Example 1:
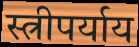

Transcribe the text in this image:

स्त्रीपर्याय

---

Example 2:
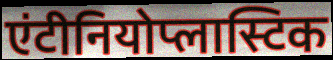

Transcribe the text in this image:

एंटीनियोप्लास्टिक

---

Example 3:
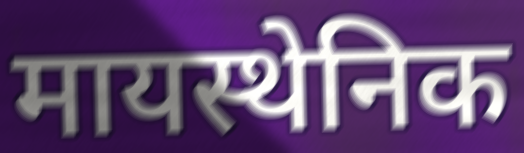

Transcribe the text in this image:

मायस्थेनिक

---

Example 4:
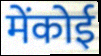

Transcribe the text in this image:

मेंकोई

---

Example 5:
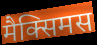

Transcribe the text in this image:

मैक्सिमस